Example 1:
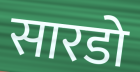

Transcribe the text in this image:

सारडो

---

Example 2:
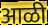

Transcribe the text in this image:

आळी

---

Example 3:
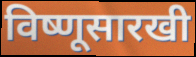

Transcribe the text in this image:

विष्णूसारखी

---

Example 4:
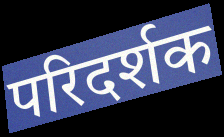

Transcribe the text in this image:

परिदर्शक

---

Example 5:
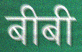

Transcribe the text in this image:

बीबी